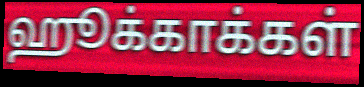
ஹூக்காக்கள்